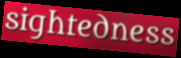
sightedness